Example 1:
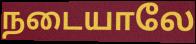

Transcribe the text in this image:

நடையாலே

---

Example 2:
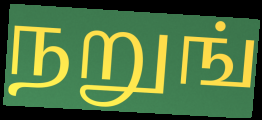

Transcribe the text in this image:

நறுங்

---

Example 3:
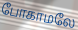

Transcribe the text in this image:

போகாமலே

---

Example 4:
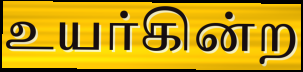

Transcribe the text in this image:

உயர்கின்ற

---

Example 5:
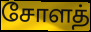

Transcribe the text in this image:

சோளத்